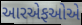
આરએફઓએ